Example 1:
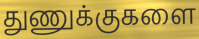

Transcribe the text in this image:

துணுக்குகளை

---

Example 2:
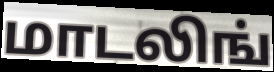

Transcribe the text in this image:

மாடலிங்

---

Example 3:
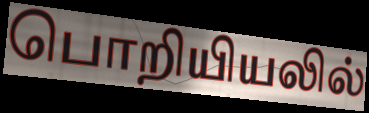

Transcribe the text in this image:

பொறியியலில்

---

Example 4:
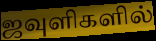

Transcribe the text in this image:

ஜவுளிகளில்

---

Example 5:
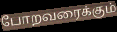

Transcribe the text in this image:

போறவரைக்கும்